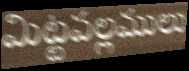
మిట్టపల్లములు